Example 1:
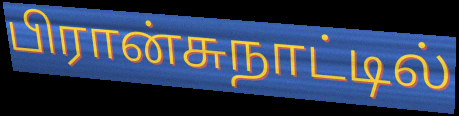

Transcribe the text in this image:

பிரான்சுநாட்டில்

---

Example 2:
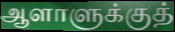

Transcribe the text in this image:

ஆளாளுக்குத்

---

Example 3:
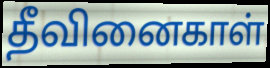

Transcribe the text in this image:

தீவினைகாள்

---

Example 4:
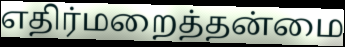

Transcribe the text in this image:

எதிர்மறைத்தன்மை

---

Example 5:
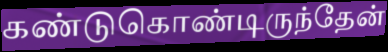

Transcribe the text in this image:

கண்டுகொண்டிருந்தேன்